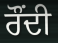
ਰੌਂਦੀ